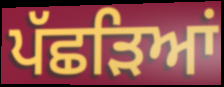
ਪੱਛੜਿਆਂ